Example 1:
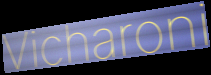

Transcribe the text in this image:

Vicharoni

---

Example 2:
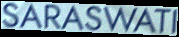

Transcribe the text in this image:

SARASWATI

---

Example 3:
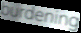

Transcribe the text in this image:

burdening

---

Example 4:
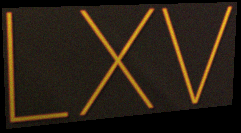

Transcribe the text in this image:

LXV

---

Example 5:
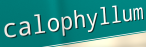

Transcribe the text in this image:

calophyllum